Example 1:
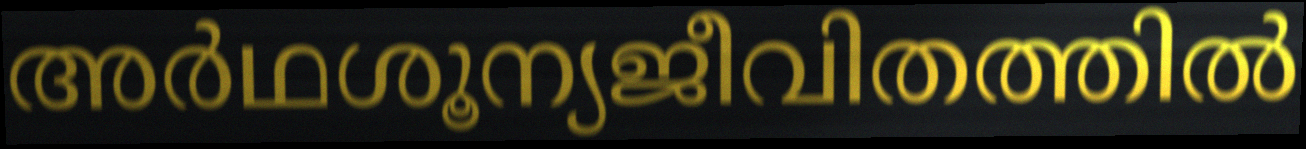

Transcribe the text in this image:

അർഥശൂന്യജീവിതത്തിൽ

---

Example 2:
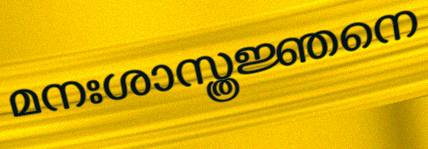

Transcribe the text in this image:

മനഃശാസ്ത്രജ്ഞനെ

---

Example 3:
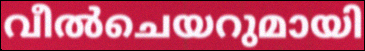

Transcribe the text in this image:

വീൽചെയറുമായി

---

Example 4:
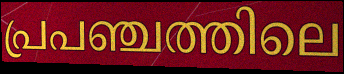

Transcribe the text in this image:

പ്രപഞ്ചത്തിലെ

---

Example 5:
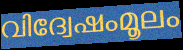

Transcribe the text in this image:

വിദ്വേഷംമൂലം